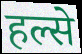
हल्से